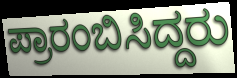
ಪ್ರಾರಂಬಿಸಿದ್ದರು